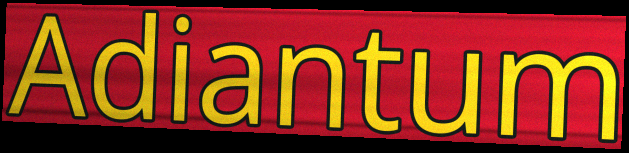
Adiantum